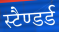
स्टैण्डर्ड